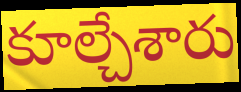
కూల్చేశారు